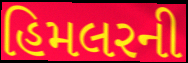
હિમલરની